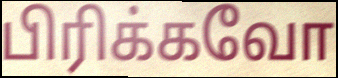
பிரிக்கவோ